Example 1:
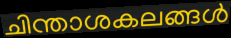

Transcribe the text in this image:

ചിന്താശകലങ്ങൾ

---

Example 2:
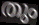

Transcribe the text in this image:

തും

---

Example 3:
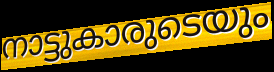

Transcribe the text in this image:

നാട്ടുകാരുടെയും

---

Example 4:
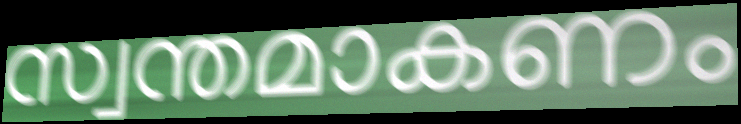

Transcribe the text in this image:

സ്വന്തമാകണം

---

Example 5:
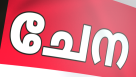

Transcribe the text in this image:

ചേന